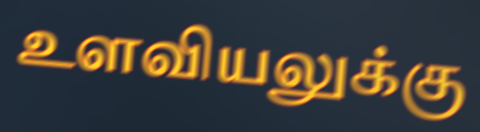
உளவியலுக்கு